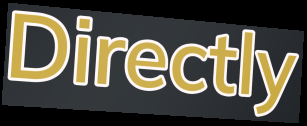
Directly